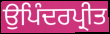
ਉਪਿੰਦਰਪ੍ਰੀਤ